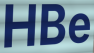
HBe